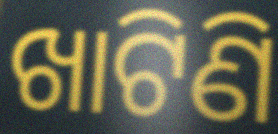
ଖାଟିଣି